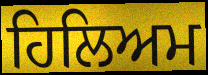
ਹਿਲਿਅਮ